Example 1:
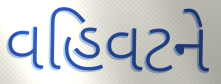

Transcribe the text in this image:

વહિવટને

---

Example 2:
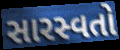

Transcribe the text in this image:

સારસ્વતો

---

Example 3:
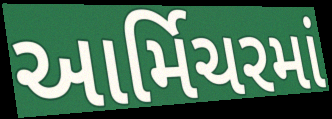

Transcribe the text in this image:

આર્મિચરમાં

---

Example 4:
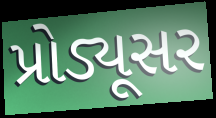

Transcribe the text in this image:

પ્રોડ્યૂસર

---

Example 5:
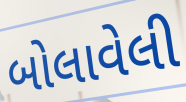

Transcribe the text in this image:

બોલાવેલી